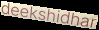
deekshidhar